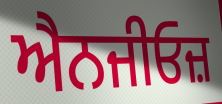
ਐਨਜੀਓਜ਼